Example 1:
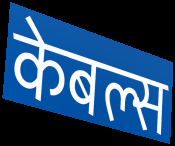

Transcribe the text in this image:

केबल्स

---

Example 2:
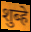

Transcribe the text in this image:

शुब्हे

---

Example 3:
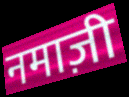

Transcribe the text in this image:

नमाज़ी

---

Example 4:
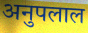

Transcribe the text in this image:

अनुपलाल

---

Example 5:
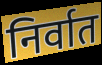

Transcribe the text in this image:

निर्वात